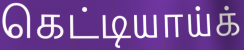
கெட்டியாய்க்